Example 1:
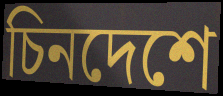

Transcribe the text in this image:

চিনদেশে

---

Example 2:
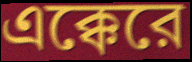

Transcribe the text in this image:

এক্কেরে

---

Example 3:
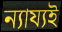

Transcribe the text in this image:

ন্যায্যই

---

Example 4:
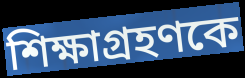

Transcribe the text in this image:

শিক্ষাগ্রহণকে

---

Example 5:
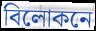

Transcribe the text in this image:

বিলোকনে